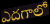
ఎదగాలో